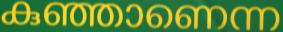
കുഞ്ഞാണെന്ന